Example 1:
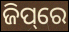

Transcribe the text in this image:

ଜିପ୍‌ରେ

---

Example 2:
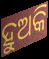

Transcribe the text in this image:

ହୁଅକି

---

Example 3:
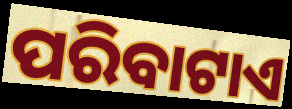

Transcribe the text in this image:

ପରିବାଟାଏ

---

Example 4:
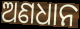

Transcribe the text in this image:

ଅଣଧାନ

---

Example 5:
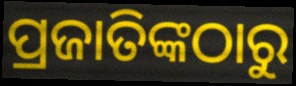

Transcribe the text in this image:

ପ୍ରଜାତିଙ୍କଠାରୁ